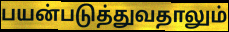
பயன்படுத்துவதாலும்